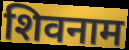
शिवनाम